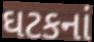
ઘટકનાં